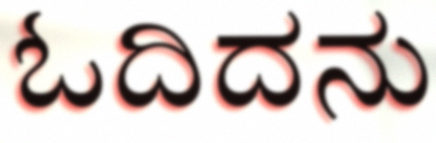
ಓದಿದನು